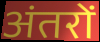
अंतरों